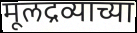
मूलद्रव्याच्या